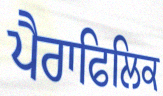
ਪੈਰਾਫਿਲਿਕ